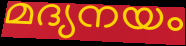
മദ്യനയം